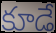
కూడే